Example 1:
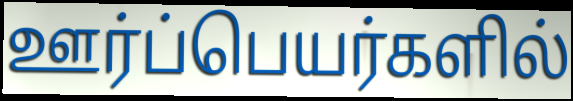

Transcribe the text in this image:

ஊர்ப்பெயர்களில்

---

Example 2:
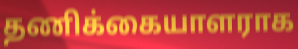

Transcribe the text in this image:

தணிக்கையாளராக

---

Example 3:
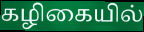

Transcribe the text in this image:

கழிகையில்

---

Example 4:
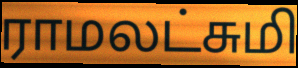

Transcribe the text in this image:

ராமலட்சுமி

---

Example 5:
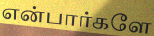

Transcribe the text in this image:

என்பார்களே